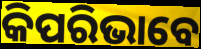
କିପରିଭାବେ